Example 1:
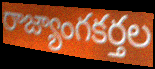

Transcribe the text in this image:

రాజ్యాంగకర్తల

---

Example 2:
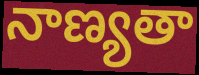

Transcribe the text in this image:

నాణ్యతా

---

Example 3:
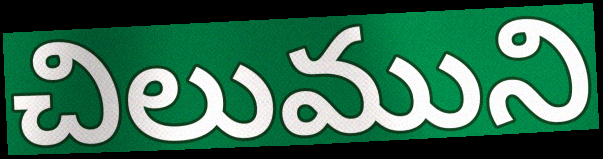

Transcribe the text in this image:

చిలుముని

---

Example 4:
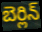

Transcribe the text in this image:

బెర్లిన్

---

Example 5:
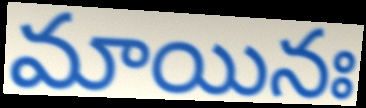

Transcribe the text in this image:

మాయినః